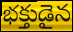
భక్తుడైన